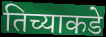
तिच्याकडे